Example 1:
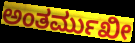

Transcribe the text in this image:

ಅಂತರ್ಮುಖೀ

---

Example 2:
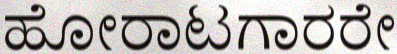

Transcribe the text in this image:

ಹೋರಾಟಗಾರರೇ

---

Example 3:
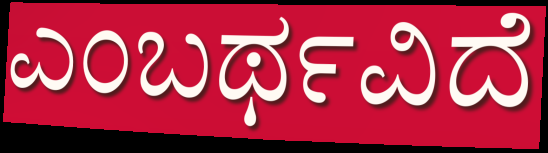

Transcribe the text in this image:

ಎಂಬರ್ಥವಿದೆ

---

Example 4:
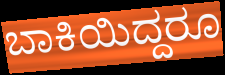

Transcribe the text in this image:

ಬಾಕಿಯಿದ್ದರೂ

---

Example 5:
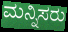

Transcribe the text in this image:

ಮನ್ನಿಸರು